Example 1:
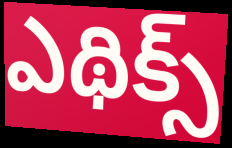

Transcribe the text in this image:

ఎథిక్స్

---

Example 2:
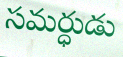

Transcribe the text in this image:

సమర్ధుడు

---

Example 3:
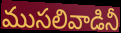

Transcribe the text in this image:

ముసలివాడినీ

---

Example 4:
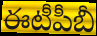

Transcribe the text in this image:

ఈటీపీబీ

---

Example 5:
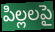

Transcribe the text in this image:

పిల్లలపై